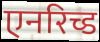
एनरिच्ड